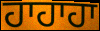
ਹਾਹਾਹਾ